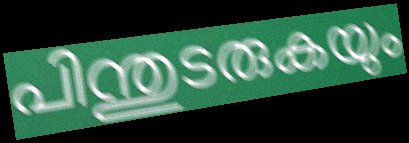
പിന്തുടരുകയും